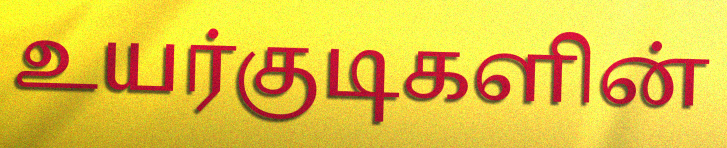
உயர்குடிகளின்